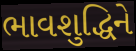
ભાવશુદ્ધિને